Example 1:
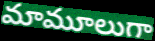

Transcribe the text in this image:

మామూలుగా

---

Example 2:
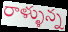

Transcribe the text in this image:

రాళ్ళున్న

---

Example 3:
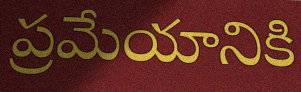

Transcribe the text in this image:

ప్రమేయానికి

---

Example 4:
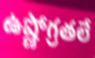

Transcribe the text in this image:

ఉష్ణోగ్రతలే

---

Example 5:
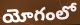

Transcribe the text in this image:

యోగంలో